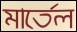
মার্তেল